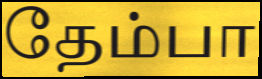
தேம்பா